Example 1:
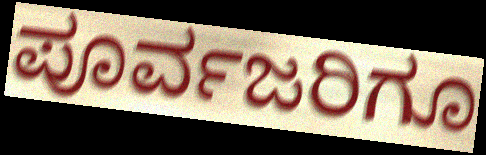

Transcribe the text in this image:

ಪೂರ್ವಜರಿಗೂ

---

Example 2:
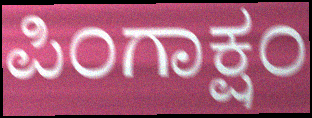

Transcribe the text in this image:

ಪಿಂಗಾಕ್ಷಂ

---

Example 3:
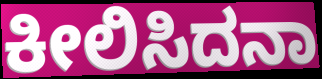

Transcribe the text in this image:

ಕೀಲಿಸಿದನಾ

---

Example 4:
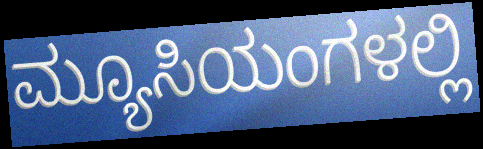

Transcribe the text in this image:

ಮ್ಯೂಸಿಯಂಗಳಲ್ಲಿ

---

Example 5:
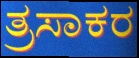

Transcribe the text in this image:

ತ್ರಸಾಕರ